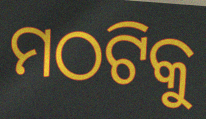
ମଠଟିକୁ